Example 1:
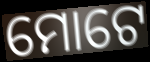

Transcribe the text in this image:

ମୋଟେ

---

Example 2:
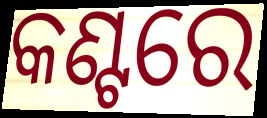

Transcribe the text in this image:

କଣ୍ଟରେ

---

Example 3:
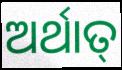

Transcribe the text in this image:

ଅର୍ଥାତ୍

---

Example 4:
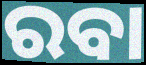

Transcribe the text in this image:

ରବା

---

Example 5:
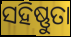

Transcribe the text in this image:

ସହିଷ୍ଣୁତା